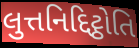
લુત્તનિદ્દિટ્ઠોતિ